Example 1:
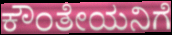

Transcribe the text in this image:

ಕೌಂತೇಯನಿಗೆ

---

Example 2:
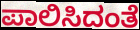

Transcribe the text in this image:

ಪಾಲಿಸಿದಂತೆ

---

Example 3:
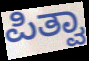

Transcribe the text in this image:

ಪಿತ್ವಾ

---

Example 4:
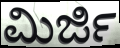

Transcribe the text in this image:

ಮಿರ್ಜಿ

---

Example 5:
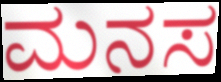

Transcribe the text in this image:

ಮನಸ